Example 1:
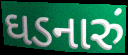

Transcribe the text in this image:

ઘડનારું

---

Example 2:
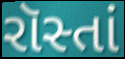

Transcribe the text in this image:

રૉસ્તાં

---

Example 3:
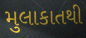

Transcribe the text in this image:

મુલાકાતથી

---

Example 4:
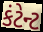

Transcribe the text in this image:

કંટેન્ટ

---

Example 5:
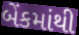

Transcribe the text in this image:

બેંકમાંથી